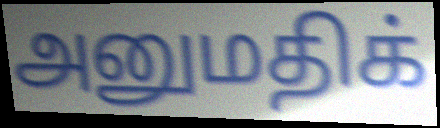
அனுமதிக்